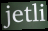
jetli